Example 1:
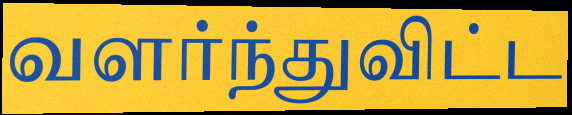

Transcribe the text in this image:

வளர்ந்துவிட்ட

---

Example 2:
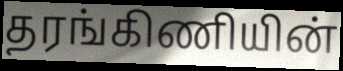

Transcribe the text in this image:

தரங்கிணியின்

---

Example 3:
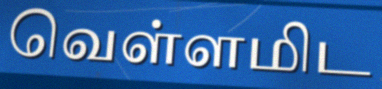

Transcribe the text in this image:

வெள்ளமிட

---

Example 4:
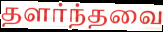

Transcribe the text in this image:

தளர்ந்தவை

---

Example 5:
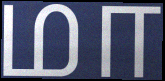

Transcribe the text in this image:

மா